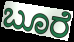
ಬೂರೆ